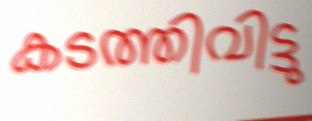
കടത്തിവിട്ടു